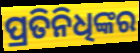
ପ୍ରତିନିଧିଙ୍କର